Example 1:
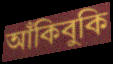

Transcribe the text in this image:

আঁকিবুকি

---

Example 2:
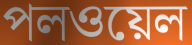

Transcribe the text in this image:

পলওয়েল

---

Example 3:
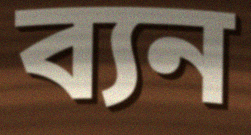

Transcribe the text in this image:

ব্যন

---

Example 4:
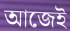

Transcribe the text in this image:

আজেই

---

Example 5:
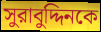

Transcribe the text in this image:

সুরাবুদ্দিনকে